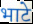
भाटे